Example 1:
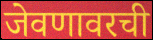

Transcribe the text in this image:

जेवणावरची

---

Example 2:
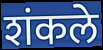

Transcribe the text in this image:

शंकले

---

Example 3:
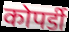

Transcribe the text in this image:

कोपर्डी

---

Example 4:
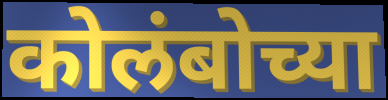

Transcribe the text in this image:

कोलंबोच्या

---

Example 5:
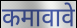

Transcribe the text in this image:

कमावावे